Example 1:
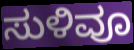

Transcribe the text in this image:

ಸುಳಿವೂ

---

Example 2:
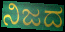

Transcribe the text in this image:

ನಿಜದ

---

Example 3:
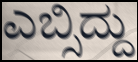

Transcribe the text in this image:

ಎಬ್ಸಿದ್ದು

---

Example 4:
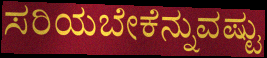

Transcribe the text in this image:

ಸರಿಯಬೇಕೆನ್ನುವಷ್ಟು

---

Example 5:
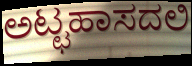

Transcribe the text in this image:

ಅಟ್ಟಹಾಸದಲಿ